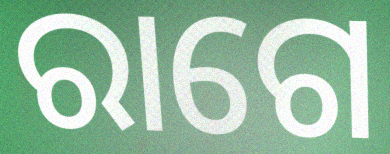
ରାଗେ